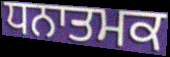
ਧਨਾਤਮਕ